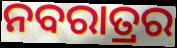
ନବରାତ୍ରର